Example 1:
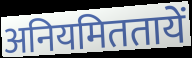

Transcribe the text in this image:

अनियमिततायें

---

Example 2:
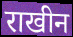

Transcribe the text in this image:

राखीन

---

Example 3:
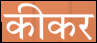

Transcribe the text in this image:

कीकर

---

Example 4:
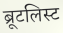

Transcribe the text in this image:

ब्रूटलिस्ट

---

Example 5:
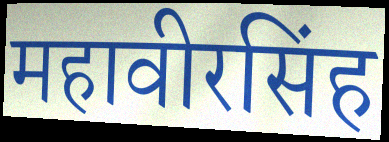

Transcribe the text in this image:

महावीरसिंह